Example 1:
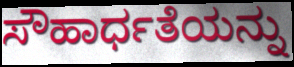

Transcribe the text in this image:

ಸೌಹಾರ್ಧತೆಯನ್ನು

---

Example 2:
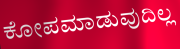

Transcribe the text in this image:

ಕೋಪಮಾಡುವುದಿಲ್ಲ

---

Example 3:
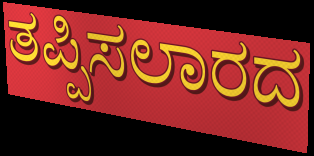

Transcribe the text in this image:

ತಪ್ಪಿಸಲಾರದ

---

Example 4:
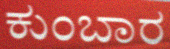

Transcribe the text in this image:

ಕುಂಬಾರ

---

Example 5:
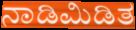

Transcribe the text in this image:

ನಾಡಿಮಿಡಿತ